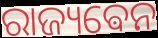
ରାଜ୍ୟଵେନ